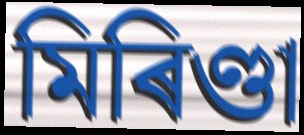
মিৰিণ্ডা